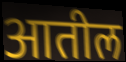
आतील